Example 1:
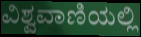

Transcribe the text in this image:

ವಿಶ್ವವಾಣಿಯಲ್ಲಿ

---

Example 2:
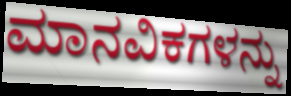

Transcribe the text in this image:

ಮಾನವಿಕಗಳನ್ನು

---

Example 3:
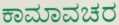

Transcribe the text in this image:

ಕಾಮಾವಚರ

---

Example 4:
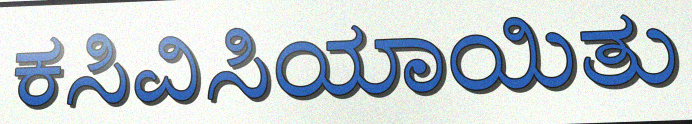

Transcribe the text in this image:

ಕಸಿವಿಸಿಯಾಯಿತು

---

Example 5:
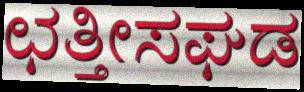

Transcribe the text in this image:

ಛತ್ತೀಸಘಡ